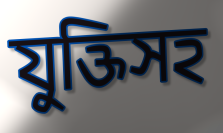
যুক্তিসহ